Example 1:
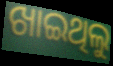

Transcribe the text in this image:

ଖାଇଥିଲୁ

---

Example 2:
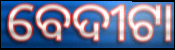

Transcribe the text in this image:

ବେଦୀଟା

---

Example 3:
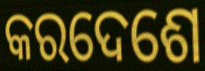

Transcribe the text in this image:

କରଦେଶେ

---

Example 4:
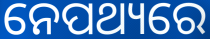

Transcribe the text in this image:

ନେପଥ୍ୟରେ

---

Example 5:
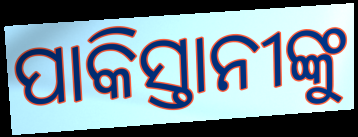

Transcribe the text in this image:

ପାକିସ୍ତାନୀଙ୍କୁ